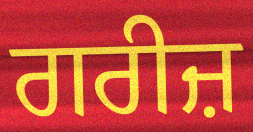
ਗਰੀਜ਼